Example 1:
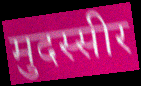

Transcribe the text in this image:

मुदस्सीर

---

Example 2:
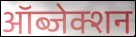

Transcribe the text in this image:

ऑब्जेक्शन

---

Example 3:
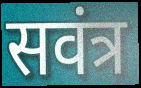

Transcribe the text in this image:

सवंत्र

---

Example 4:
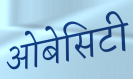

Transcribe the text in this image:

ओबेसिटी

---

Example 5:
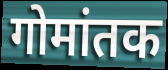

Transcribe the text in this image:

गोमांतक